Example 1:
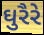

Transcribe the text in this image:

ઘુરૈરે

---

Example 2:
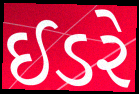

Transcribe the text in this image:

ઈડરે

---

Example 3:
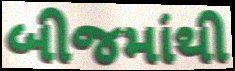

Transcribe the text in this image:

બીજમાંથી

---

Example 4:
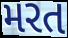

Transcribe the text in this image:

મરત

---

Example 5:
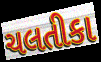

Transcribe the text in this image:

ચલતીકા